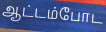
ஆட்டம்போட